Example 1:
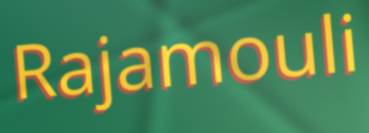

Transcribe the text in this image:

Rajamouli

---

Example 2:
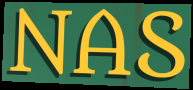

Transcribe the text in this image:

NAS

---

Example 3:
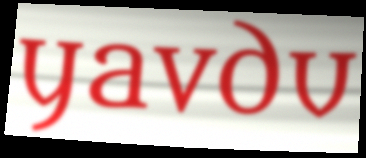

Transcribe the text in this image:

yavdu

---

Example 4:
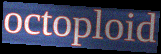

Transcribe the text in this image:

octoploid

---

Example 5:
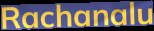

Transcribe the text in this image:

Rachanalu